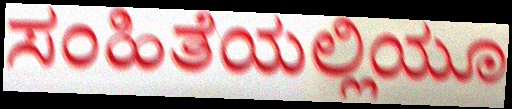
ಸಂಹಿತೆಯಲ್ಲಿಯೂ